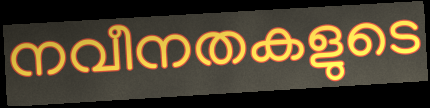
നവീനതകളുടെ